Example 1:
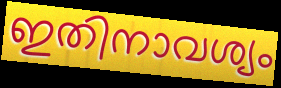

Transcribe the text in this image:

ഇതിനാവശ്യം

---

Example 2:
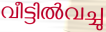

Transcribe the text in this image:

വീട്ടിൽവച്ചു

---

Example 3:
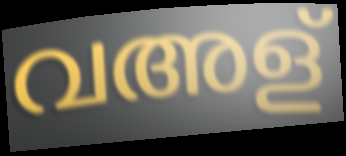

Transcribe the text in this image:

വഅള്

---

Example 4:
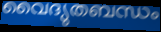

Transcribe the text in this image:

വൈദ്യുതബന്ധം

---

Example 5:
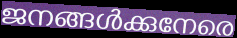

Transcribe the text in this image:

ജനങ്ങൾക്കുനേരെ